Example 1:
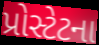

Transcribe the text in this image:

પ્રોસ્ટેટના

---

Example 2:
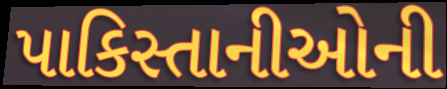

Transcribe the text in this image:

પાકિસ્તાનીઓની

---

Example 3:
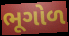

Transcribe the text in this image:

ભૂગોળ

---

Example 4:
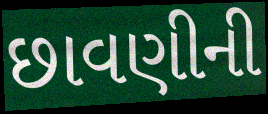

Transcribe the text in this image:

છાવણીની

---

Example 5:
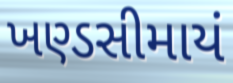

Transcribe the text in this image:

ખણ્ડસીમાયં